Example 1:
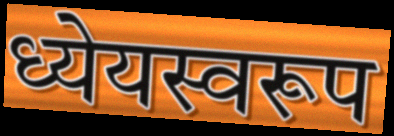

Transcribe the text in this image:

ध्येयस्वरूप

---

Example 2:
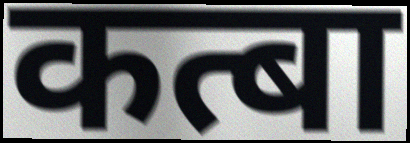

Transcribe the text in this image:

कत्बा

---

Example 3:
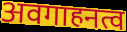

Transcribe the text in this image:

अवगाहनत्व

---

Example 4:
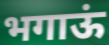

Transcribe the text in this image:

भगाऊं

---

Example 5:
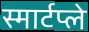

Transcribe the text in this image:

स्मार्टप्ले